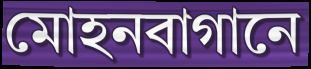
মোহনবাগানে